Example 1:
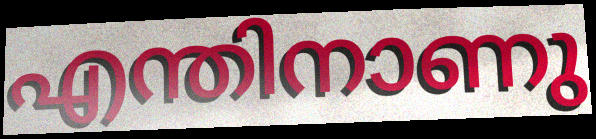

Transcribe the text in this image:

എന്തിനാണു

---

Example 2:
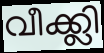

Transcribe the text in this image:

വീക്ക്ലി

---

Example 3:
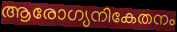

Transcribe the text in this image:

ആരോഗ്യനികേതനം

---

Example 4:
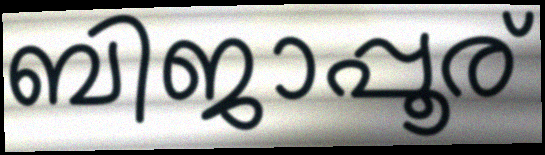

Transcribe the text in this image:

ബിജാപ്പൂര്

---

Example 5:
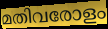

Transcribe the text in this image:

മതിവരോളം